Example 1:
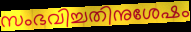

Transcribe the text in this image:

സംഭവിച്ചതിനുശേഷം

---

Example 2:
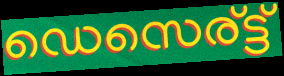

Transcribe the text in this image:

ഡെസെര്ട്ട്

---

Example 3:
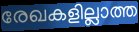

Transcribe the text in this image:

രേഖകളില്ലാത്ത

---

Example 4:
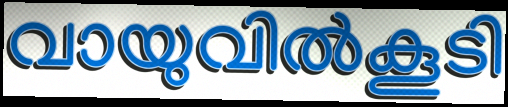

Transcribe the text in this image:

വായുവിൽകൂടി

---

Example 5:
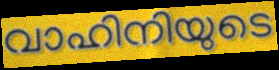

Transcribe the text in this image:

വാഹിനിയുടെ